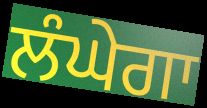
ਲੰਘੇਗਾ